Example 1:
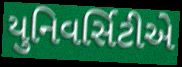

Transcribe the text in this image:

યુનિવર્સિટીએ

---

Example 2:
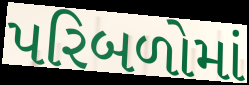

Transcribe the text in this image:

પરિબળોમાં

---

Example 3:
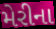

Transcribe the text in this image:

મેરીના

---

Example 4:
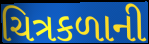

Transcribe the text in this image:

ચિત્રકળાની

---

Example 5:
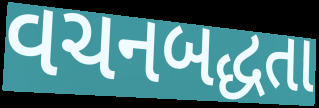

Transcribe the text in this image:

વચનબદ્ધતા